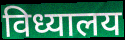
विध्यालय